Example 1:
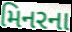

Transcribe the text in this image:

મિનરના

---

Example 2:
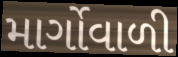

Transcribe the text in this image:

માર્ગોવાળી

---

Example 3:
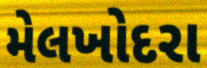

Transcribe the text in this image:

મેલખોદરા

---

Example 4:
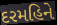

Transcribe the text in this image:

દરમહિને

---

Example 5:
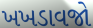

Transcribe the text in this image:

ખખડાવજો